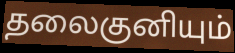
தலைகுனியும்